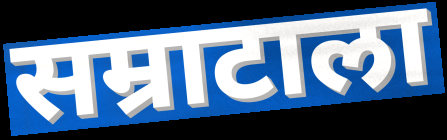
सम्राटाला